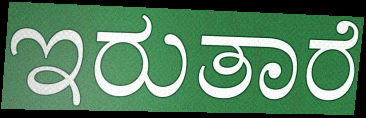
ಇರುತಾರೆ